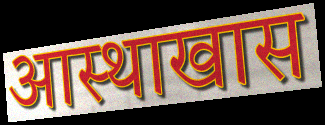
आस्थाखास